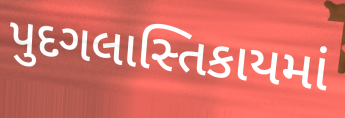
પુદગલાસ્તિકાયમાં